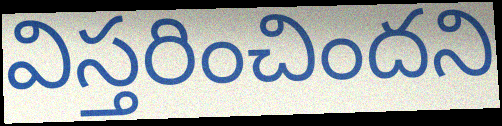
విస్తరించిందని